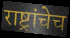
राष्ट्रांचेच